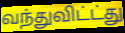
வந்துவிட்ட்து